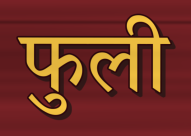
फुली